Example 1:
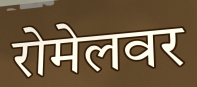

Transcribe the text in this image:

रोमेलवर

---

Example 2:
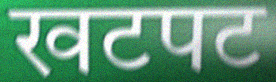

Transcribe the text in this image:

खटपट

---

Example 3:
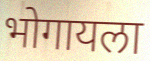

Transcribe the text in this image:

भोगायला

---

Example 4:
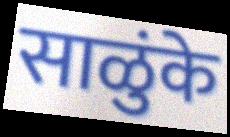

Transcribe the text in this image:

साळुंके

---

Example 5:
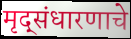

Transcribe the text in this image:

मृद्संधारणाचे